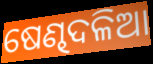
ଷେଣ୍ଢଦଳିଆ